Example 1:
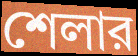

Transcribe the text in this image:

শেলার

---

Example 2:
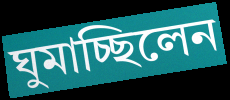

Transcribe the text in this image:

ঘুমাচ্ছিলেন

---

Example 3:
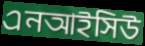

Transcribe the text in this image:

এনআইসিউ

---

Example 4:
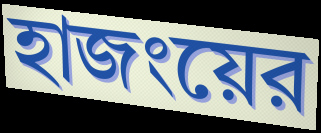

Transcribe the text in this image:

হাজংয়ের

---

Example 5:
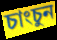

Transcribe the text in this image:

চাংচুন